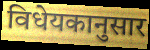
विधेयकानुसार